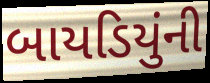
બાયડિયુંની